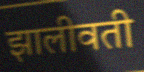
झालीवती